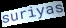
suriyas